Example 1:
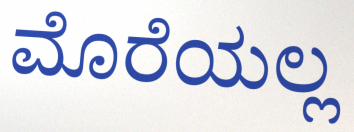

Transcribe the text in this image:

ಮೊರೆಯಲ್ಲ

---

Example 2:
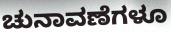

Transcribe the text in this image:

ಚುನಾವಣೆಗಳೂ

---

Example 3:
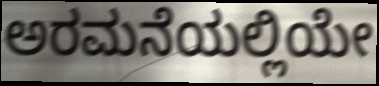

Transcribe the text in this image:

ಅರಮನೆಯಲ್ಲಿಯೇ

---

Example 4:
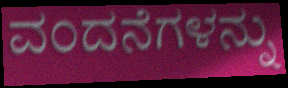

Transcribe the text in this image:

ವಂದನೆಗಳನ್ನು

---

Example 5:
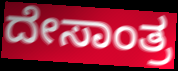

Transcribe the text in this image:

ದೇಸಾಂತ್ರ